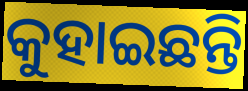
କୁହାଇଛନ୍ତି